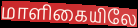
மாளிகையிலே